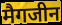
मैगजीन